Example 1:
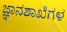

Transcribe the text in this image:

ಜ್ಞಾನಶಾಖೆಗಳ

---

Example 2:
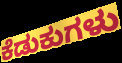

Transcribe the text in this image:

ಕೆಡುಕುಗಳು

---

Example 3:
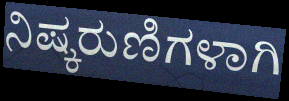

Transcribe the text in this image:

ನಿಷ್ಕರುಣಿಗಳಾಗಿ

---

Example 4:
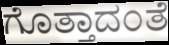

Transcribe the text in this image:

ಗೊತ್ತಾದಂತೆ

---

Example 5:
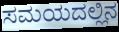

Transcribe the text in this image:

ಸಮಯದಲ್ಲಿನ